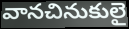
వానచినుకులై